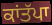
ਕਾਂਤੱਪਾ